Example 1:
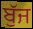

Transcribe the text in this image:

ਬੁੱਜ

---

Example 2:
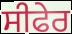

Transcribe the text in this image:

ਸੀਫੇਰ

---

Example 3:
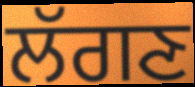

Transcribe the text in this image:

ਲੱਗਣ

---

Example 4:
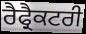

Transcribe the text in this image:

ਰੈਫ੍ਰੈਕਟਰੀ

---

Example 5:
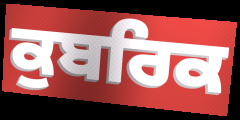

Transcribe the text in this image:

ਕੁਬਰਿਕ